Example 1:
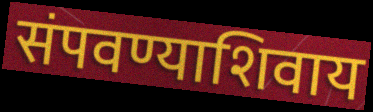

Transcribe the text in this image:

संपवण्याशिवाय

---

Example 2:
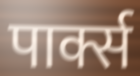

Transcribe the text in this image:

पार्क्स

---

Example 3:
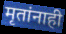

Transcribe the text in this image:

मृतांनाही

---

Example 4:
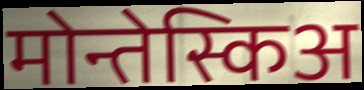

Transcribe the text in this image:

मोन्तेस्किअ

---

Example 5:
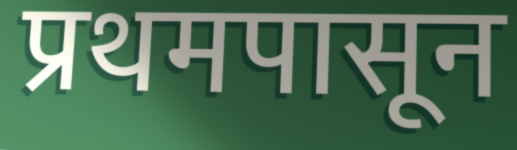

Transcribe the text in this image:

प्रथमपासून